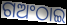
ଗଅଂଠାଇ